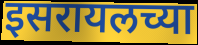
इसरायलच्या